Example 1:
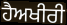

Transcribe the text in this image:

ਹੈਅਖੀਰੀ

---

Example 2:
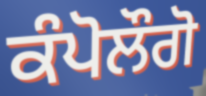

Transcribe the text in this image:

ਕੰਪੋਲੌਗੋ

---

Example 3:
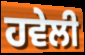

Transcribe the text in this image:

ਹਵੇਲੀ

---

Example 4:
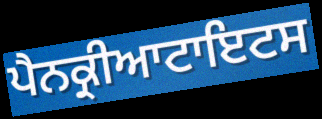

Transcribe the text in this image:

ਪੈਨਕ੍ਰੀਆਟਾਇਟਸ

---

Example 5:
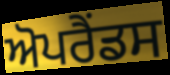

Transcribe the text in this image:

ਅੋਪਰੈਂਡਸ